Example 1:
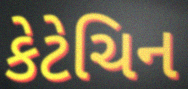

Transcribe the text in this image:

કેટેચિન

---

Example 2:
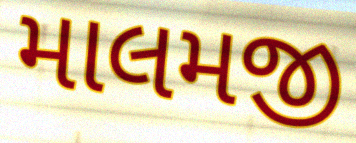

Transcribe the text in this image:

માલમજી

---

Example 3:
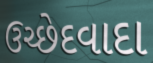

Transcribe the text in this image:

ઉચ્છેદવાદા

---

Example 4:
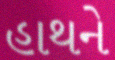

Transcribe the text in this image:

હાથને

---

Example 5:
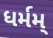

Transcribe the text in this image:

ધર્મમ્